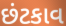
છંટકાવ